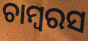
ଚାମ୍ବରସ